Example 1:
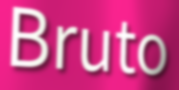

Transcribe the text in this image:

Bruto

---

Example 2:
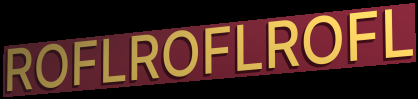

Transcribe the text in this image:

ROFLROFLROFL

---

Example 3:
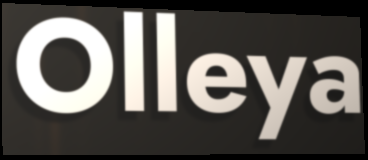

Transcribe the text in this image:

Olleya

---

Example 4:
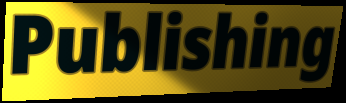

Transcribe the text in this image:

Publishing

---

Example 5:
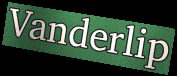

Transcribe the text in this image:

Vanderlip